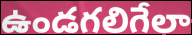
ఉండగలిగేలా